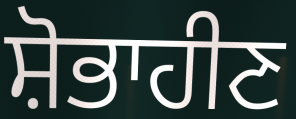
ਸ਼ੋਭਾਹੀਣ